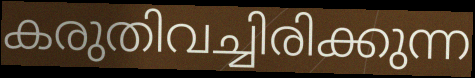
കരുതിവച്ചിരിക്കുന്ന